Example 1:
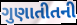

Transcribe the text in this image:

ગુણાતીતની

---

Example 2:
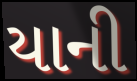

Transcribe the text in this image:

યાની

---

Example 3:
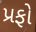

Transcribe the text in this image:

પ્રફો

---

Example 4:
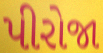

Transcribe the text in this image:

પીરોજા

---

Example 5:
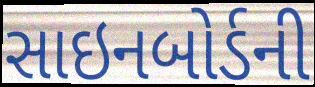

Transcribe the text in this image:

સાઇનબોર્ડની